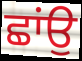
ਛਾਂਉ